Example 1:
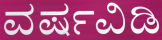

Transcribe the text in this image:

ವರ್ಷವಿಡಿ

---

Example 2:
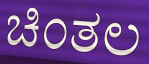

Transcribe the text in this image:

ಚಿಂತಲ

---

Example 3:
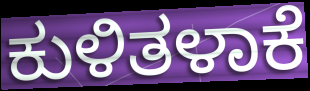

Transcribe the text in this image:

ಕುಳಿತಳಾಕೆ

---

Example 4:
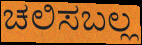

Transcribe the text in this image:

ಚಲಿಸಬಲ್ಲ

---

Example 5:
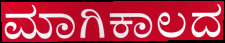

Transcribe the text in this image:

ಮಾಗಿಕಾಲದ